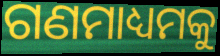
ଗଣମାଧ୍ୟମକୁ